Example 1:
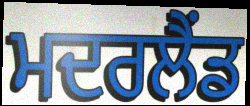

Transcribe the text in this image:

ਮਦਰਲੈਂਡ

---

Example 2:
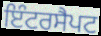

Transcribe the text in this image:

ਇੰਟਰਸੈਪਟ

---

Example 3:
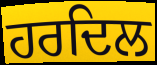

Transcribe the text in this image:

ਹਰਦਿਲ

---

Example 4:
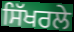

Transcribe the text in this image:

ਸਿੱਖਰਲੇ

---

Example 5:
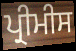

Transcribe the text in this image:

ਪ੍ਰੀਮੀਸ